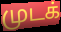
முடக்